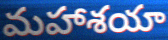
మహాశయా